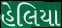
હેલિયા